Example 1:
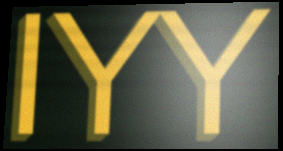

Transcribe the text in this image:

IYY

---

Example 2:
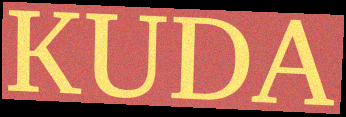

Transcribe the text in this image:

KUDA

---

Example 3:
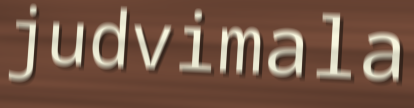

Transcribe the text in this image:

judvimala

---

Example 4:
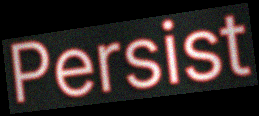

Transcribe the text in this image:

Persist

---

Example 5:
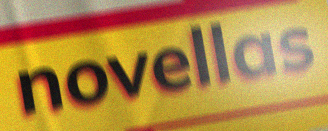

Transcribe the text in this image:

novellas